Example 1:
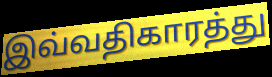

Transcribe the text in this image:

இவ்வதிகாரத்து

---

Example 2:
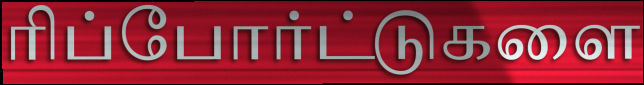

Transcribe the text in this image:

ரிப்போர்ட்டுகளை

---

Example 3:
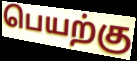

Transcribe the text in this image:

பெயற்கு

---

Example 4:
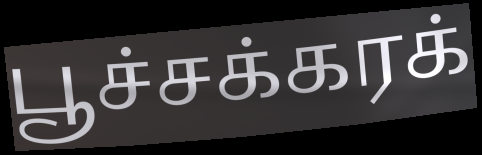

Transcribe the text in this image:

பூச்சக்கரக்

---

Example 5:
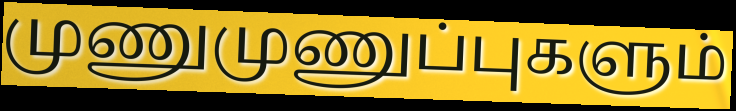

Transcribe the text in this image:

முணுமுணுப்புகளும்